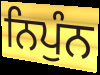
ਨਿਪੁੰਨ